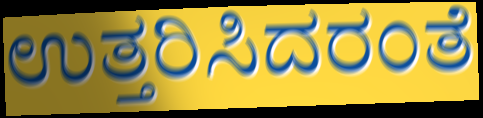
ಉತ್ತರಿಸಿದರಂತೆ